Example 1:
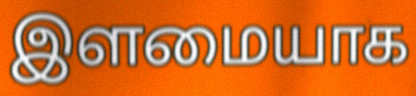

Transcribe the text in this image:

இளமையாக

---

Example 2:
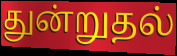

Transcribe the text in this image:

துன்றுதல்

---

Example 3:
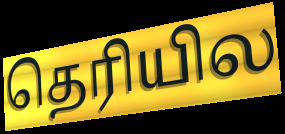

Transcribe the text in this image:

தெரியில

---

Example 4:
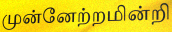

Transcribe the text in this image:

முன்னேற்றமின்றி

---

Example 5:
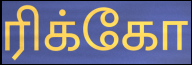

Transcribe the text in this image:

ரிக்கோ